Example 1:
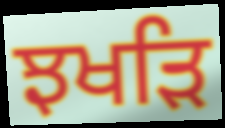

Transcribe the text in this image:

ਝਖੜਿ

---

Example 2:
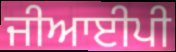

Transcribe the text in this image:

ਜੀਆਈਪੀ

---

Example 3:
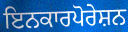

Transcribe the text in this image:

ਇਨਕਾਰਪੋਰੇਸ਼ਨ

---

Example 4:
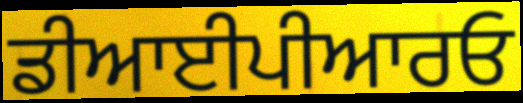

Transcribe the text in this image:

ਡੀਆਈਪੀਆਰਓ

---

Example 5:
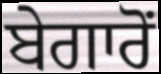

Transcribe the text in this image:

ਬੇਗਾਰੋਂ